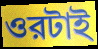
ওরটাই